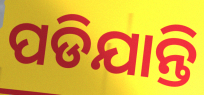
ପଡିଯାନ୍ତି